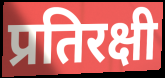
प्रतिरक्षी